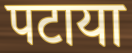
पटाया